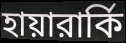
হায়ারার্কি